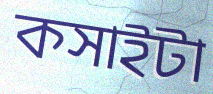
কসাইটা